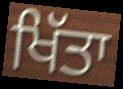
ਖਿੱਤਾ